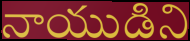
నాయుడిని